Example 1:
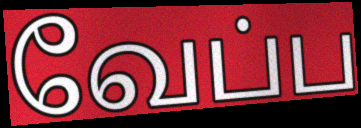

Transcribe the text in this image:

வேப்ப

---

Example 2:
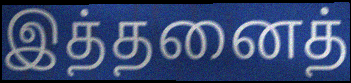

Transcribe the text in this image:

இத்தனைத்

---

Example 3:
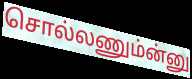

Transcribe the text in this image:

சொல்லணும்ன்னு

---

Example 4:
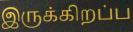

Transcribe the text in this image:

இருக்கிறப்ப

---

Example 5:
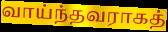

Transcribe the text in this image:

வாய்ந்தவராகத்